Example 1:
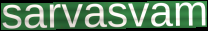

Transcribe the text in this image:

sarvasvam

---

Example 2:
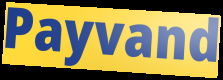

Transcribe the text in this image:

Payvand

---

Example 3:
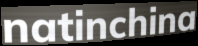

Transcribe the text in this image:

natinchina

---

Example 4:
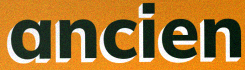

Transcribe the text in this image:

ancien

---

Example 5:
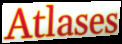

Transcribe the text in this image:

Atlases